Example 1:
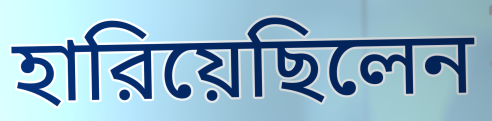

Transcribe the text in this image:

হারিয়েছিলেন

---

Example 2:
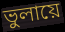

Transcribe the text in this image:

ভুলায়ে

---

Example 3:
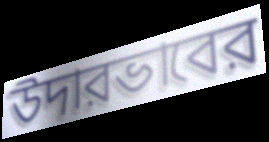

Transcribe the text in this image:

উদারভাবের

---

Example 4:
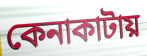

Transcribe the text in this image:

কেনাকাটায়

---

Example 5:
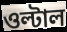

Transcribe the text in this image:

ওল্টাল